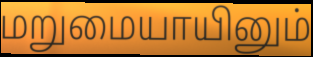
மறுமையாயினும்